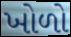
ખોળો